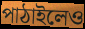
পাঠাইলেও